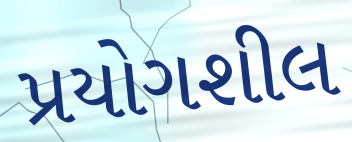
પ્રયોગશીલ